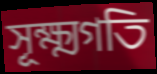
সূক্ষ্মগতি